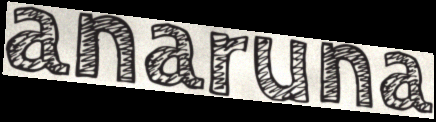
anaruna